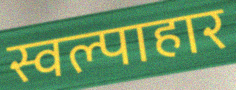
स्‍वल्‍पाहार